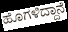
ಹೊಗಳಿದ್ದಾನೆ